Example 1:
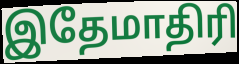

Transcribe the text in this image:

இதேமாதிரி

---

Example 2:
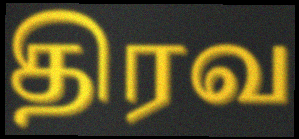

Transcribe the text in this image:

திரவ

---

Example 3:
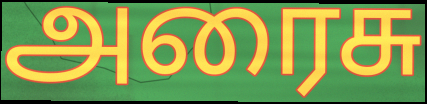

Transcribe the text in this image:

அரைசு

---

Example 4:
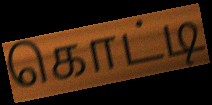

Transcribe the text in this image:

கொட்டி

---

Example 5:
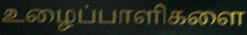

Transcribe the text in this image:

உழைப்பாளிகளை